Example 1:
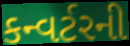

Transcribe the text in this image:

કન્વર્ટરની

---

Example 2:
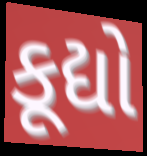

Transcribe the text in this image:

કૂદ્યો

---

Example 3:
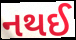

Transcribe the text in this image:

નથઈ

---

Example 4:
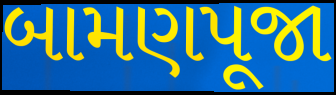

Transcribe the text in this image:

બામણપૂજા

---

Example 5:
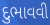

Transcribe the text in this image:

દુભાવવી